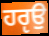
ਹਰੵਉ